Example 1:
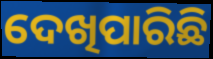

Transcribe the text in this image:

ଦେଖିପାରିଛି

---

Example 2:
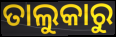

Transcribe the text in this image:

ତାଲୁକାରୁ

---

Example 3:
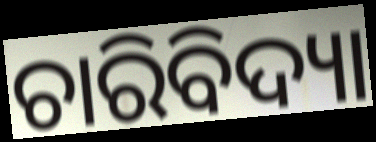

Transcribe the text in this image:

ଚାରିବିଦ୍ୟା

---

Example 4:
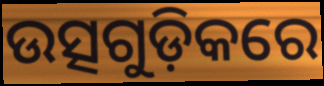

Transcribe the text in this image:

ଉତ୍ସଗୁଡ଼ିକରେ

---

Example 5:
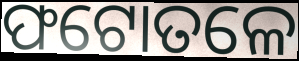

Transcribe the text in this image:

ଫଟୋତଳେ